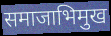
समाजाभिमुख